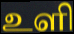
உளி